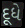
દૂધે